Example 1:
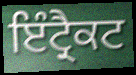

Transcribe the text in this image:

ਇੰਟ੍ਰੈਕਟ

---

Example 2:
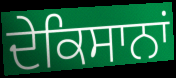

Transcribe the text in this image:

ਦੇਕਿਸਾਨਾਂ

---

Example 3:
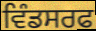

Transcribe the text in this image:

ਵਿੰਡਸਰਫ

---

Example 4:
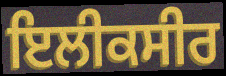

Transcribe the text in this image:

ਇਲੀਕਸੀਰ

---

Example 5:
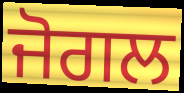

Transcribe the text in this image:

ਜੋਗਲ